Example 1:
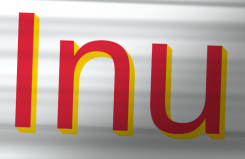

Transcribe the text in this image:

Inu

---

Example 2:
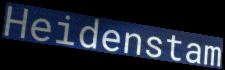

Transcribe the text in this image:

Heidenstam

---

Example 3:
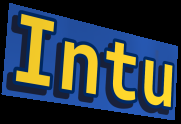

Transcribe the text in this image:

Intu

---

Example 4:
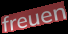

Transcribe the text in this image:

freuen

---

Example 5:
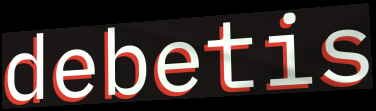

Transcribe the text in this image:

debetis